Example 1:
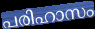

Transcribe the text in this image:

പരിഹാസം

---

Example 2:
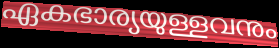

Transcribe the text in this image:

ഏകഭാര്യയുള്ളവനും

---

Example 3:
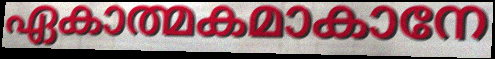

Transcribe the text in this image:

ഏകാത്മകമാകാനേ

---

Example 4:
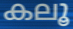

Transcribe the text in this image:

കലൂ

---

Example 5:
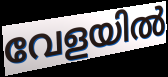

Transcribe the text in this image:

വേളയിൽ